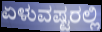
ಏಳುವಷ್ಟರಲ್ಲಿ